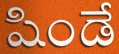
షిండే